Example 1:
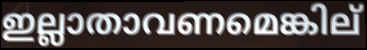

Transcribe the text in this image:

ഇല്ലാതാവണമെങ്കില്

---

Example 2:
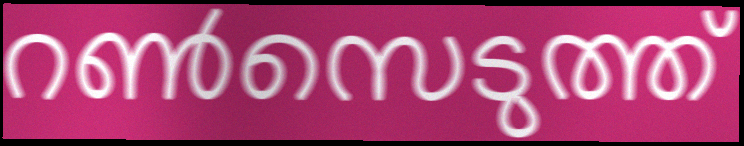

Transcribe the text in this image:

റൺസെടുത്ത്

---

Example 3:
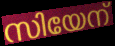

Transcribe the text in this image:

സിയേന്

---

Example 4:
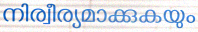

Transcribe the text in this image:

നിര്വീര്യമാക്കുകയും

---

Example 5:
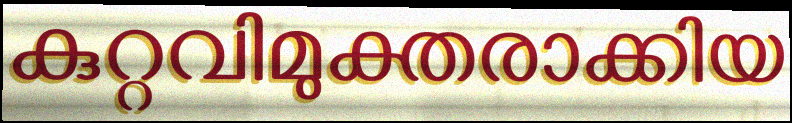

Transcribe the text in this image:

കുറ്റവിമുക്തരാക്കിയ